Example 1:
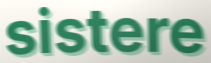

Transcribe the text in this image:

sistere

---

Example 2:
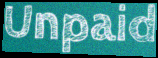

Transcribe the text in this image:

Unpaid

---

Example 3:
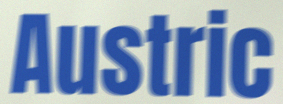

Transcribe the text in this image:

Austric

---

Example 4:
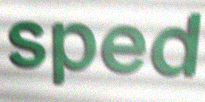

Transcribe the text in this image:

sped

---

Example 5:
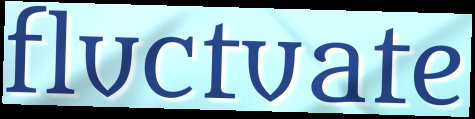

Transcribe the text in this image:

fluctuate